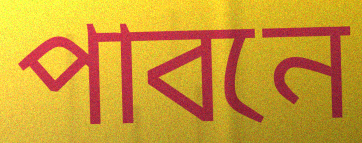
পাবনে